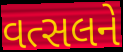
વત્સલને